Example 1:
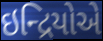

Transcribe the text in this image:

ઇન્દ્રિયોએ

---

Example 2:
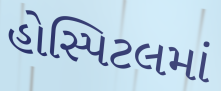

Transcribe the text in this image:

હોસ્પિટલમાં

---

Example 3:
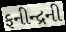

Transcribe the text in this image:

ફનીન્દ્રની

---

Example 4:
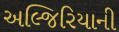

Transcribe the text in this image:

અલ્જિરિયાની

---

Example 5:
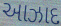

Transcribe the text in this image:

આઝાદ